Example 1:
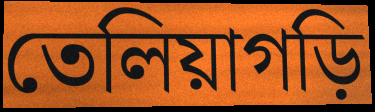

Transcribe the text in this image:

তেলিয়াগড়ি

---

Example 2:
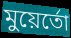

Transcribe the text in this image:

মুয়ের্তো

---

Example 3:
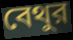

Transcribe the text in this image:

বেথুর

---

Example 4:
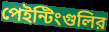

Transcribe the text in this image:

পেইন্টিংগুলির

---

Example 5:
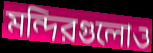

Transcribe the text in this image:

মন্দিরগুলোও